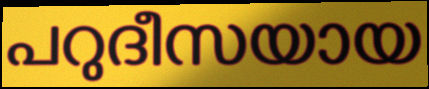
പറുദീസയായ